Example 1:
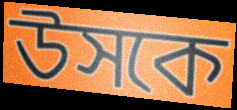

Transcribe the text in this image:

উসকে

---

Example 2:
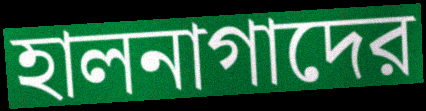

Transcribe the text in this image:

হালনাগাদের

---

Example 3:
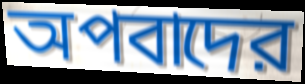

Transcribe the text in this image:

অপবাদের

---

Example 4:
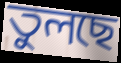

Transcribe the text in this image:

তুলছে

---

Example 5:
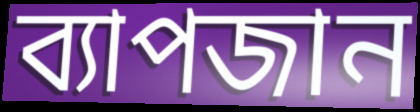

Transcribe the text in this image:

ব্যাপজান